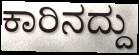
ಕಾರಿನದ್ದು